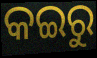
କଇରୁ